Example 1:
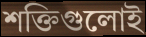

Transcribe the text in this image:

শক্তিগুলোই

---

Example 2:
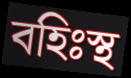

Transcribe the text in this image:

বহিঃস্থ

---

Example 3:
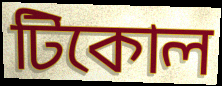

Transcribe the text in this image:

টিকোল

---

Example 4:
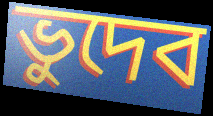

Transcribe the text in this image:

ভুদেব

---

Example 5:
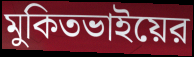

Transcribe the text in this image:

মুকিতভাইয়ের